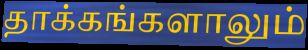
தாக்கங்களாலும்